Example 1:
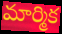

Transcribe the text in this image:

మార్మిక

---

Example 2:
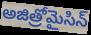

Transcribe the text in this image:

అజిత్రోమైసిన్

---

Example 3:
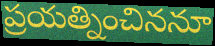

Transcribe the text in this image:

ప్రయత్నించిననూ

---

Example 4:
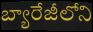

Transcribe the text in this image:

బ్యారేజీలోని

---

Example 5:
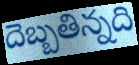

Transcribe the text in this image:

దెబ్బతిన్నది